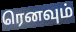
ரெனவும்